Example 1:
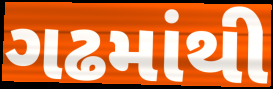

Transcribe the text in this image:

ગઢમાંથી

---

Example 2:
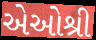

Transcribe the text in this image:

એઓશ્રી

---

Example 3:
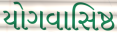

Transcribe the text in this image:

યોગવાસિષ્ઠ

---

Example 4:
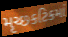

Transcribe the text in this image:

મૃચ્છકટિકમાં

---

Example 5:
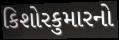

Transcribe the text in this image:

કિશોરકુમારનો